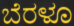
ಬೆರಳೂ